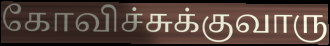
கோவிச்சுக்குவாரு